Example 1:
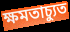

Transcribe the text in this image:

ক্ষমতাচ্যুত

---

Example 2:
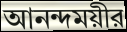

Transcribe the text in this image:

আনন্দময়ীর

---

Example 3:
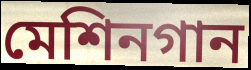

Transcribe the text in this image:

মেশিনগান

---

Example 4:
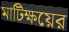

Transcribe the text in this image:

মাটিক্ষয়ের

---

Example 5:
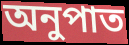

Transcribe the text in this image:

অনুপাত